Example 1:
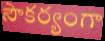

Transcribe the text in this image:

సౌకర్యంగా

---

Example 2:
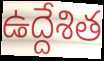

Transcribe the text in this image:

ఉద్దేశిత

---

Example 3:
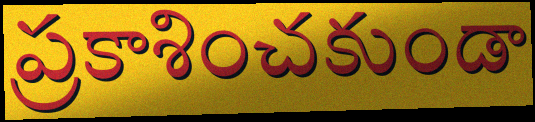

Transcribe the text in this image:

ప్రకాశించకుండా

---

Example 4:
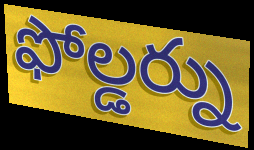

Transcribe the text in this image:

ఫోల్డర్ను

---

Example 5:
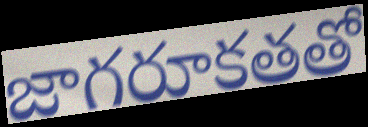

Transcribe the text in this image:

జాగరూకతతో